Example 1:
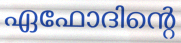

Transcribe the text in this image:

ഏഫോദിന്റെ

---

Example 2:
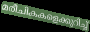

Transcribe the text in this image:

മരീചികകളെക്കുറിച്ച്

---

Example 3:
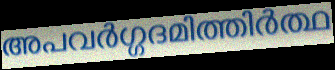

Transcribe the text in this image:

അപവർഗ്ഗദമിത്തിർത്ഥ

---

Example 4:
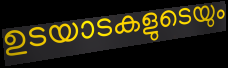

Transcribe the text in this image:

ഉടയാടകളുടെയും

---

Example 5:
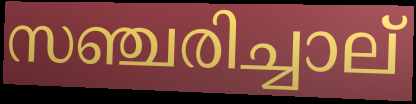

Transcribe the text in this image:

സഞ്ചരിച്ചാല്